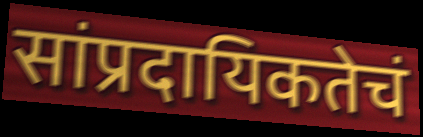
सांप्रदायिकतेचं